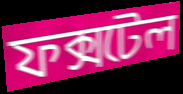
ফক্সটেল